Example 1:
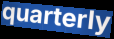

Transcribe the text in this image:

quarterly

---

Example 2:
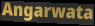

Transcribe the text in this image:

Angarwata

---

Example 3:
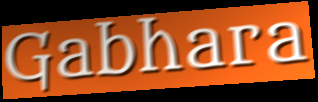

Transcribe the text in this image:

Gabhara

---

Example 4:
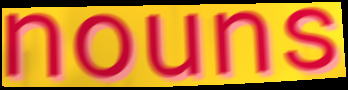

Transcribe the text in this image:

nouns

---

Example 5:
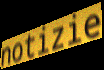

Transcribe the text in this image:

notizie